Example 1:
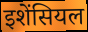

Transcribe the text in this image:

इशेंसियल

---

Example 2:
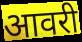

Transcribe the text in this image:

आवरी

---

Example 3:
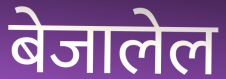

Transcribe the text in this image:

बेजालेल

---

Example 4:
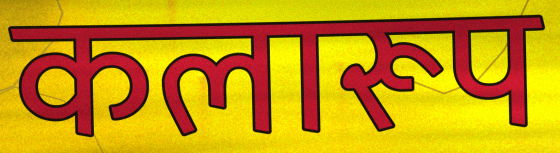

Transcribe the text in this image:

कलारूप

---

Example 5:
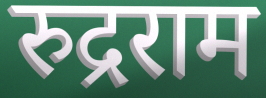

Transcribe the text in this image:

रुद्रराम